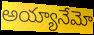
అయ్యానేమో